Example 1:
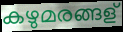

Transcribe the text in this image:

കഴുമരങ്ങള്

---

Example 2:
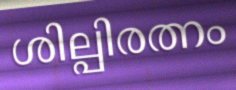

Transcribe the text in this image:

ശില്പിരത്നം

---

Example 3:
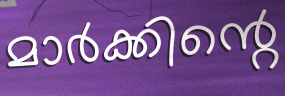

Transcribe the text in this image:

മാർക്കിന്റെ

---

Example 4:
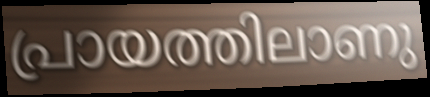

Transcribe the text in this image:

പ്രായത്തിലാണു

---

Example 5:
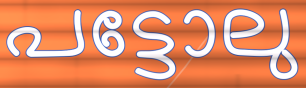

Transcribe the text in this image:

പട്ടോലു